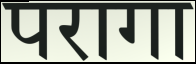
परागा